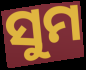
ସୁମ